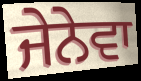
ਜੇਨੇਵਾ